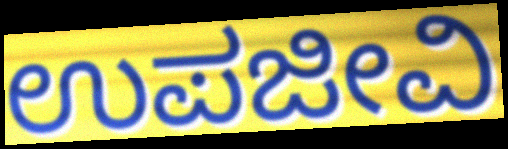
ಉಪಜೀವಿ